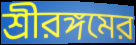
শ্রীরঙ্গমের